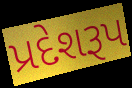
પ્રદેશરૂપ